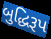
બુદ્ધિરૂપ